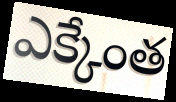
ఎక్కేంత